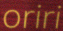
oriri